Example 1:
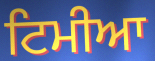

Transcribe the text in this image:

ਟਿਮੀਆ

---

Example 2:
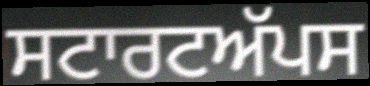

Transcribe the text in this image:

ਸਟਾਰਟਅੱਪਸ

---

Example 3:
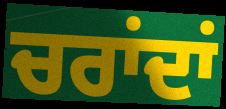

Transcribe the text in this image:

ਚਰਾਂਦਾਂ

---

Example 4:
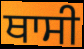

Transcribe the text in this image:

ਥਾਸੀ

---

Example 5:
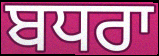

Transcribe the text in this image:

ਬਧਰਾ